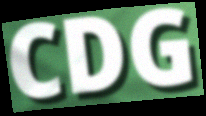
CDG